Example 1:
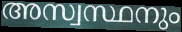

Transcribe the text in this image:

അസ്വസ്ഥനും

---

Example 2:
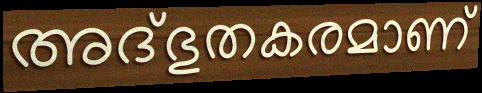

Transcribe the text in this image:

അദ്ഭുതകരമാണ്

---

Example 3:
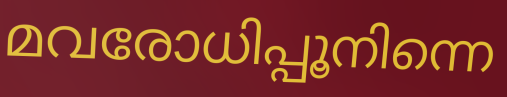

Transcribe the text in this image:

മവരോധിപ്പൂനിന്നെ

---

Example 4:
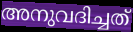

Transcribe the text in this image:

അനുവദിച്ചത്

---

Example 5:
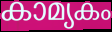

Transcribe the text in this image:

കാമ്യകം